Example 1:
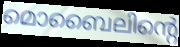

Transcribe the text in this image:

മൊബൈലിന്റെ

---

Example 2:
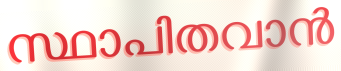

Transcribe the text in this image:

സ്ഥാപിതവാൻ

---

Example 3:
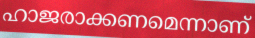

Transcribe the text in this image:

ഹാജരാക്കണമെന്നാണ്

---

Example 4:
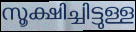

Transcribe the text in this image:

സൂക്ഷിച്ചിട്ടുള്ള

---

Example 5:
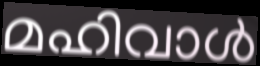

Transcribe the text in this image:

മഹിവാൾ